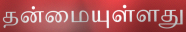
தன்மையுள்ளது